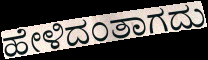
ಹೇಳಿದಂತಾಗದು